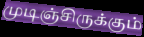
முடிஞ்சிருக்கும்